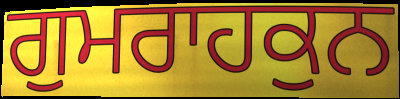
ਗੁਮਰਾਹਕੁਨ